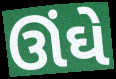
ઊંઘે